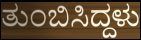
ತುಂಬಿಸಿದ್ದಳು